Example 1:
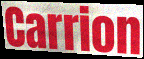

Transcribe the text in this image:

Carrion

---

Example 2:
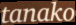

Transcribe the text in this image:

tanako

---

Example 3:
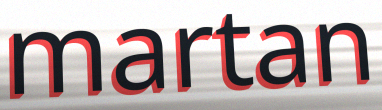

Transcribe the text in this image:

martan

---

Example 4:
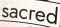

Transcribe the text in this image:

sacred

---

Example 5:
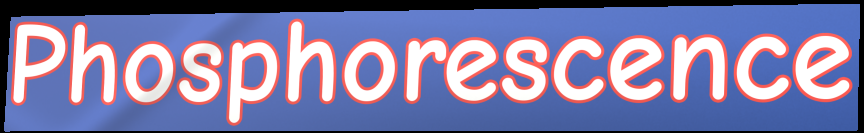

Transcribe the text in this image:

Phosphorescence